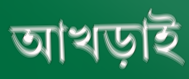
আখড়াই